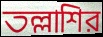
তল্লাশির